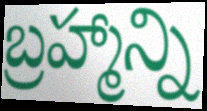
బ్రహ్మాన్ని